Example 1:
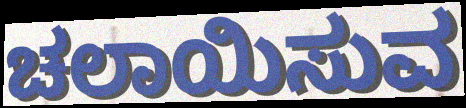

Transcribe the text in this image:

ಚಲಾಯಿಸುವ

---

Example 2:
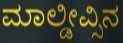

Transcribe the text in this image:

ಮಾಲ್ಡೀವ್ಸಿನ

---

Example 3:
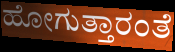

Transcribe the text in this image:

ಹೋಗುತ್ತಾರಂತೆ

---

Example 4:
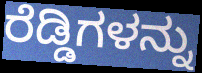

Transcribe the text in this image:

ರೆಡ್ಡಿಗಳನ್ನು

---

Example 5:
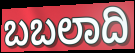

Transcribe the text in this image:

ಬಬಲಾದಿ